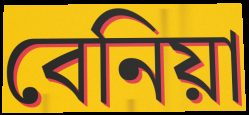
বেনিয়া